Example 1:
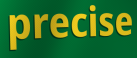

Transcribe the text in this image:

precise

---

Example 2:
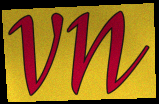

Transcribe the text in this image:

vn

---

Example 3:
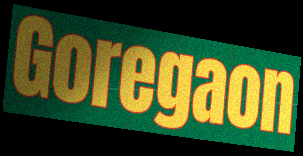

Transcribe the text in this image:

Goregaon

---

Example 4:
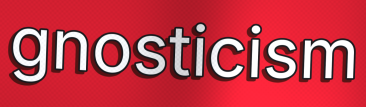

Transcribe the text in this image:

gnosticism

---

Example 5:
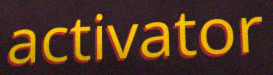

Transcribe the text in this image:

activator